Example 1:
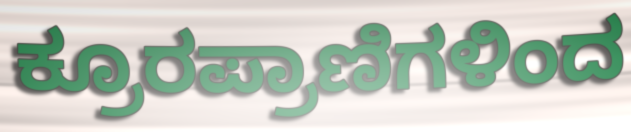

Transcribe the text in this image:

ಕ್ರೂರಪ್ರಾಣಿಗಳಿಂದ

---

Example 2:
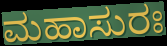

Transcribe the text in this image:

ಮಹಾಸುರಃ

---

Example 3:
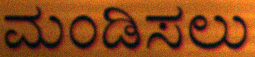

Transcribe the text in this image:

ಮಂಡಿಸಲು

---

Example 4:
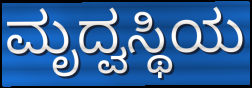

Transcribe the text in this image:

ಮೃದ್ವಸ್ಥಿಯ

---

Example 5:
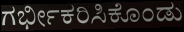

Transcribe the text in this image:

ಗರ್ಭೀಕರಿಸಿಕೊಂಡು